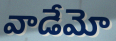
వాడేమో